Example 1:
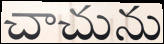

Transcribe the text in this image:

చాచును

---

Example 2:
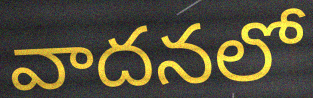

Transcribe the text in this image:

వాదనలో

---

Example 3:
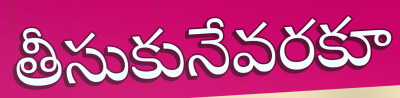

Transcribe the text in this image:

తీసుకునేవరకూ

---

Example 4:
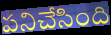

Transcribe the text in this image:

పనిచేసింది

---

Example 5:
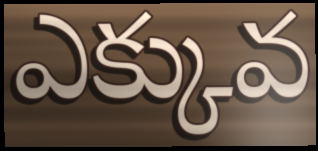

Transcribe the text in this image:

ఎక్కువ